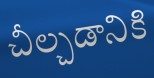
చీల్చడానికి